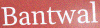
Bantwal